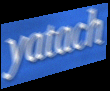
yatach